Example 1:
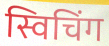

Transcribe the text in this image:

स्विचिंग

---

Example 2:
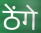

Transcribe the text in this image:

ठेंगे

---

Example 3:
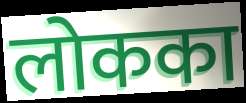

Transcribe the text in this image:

लोकका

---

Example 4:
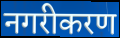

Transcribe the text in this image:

नगरीकरण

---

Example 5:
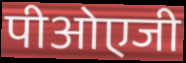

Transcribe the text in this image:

पीओएजी